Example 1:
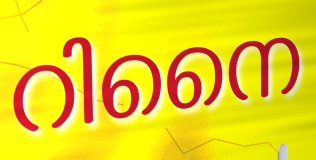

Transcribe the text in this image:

റിനൈ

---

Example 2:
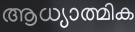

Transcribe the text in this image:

ആധ്യാത്മിക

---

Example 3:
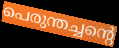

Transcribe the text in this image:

പെരുന്തച്ചന്റെ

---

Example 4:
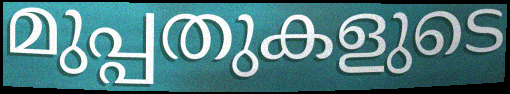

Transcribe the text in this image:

മുപ്പതുകളുടെ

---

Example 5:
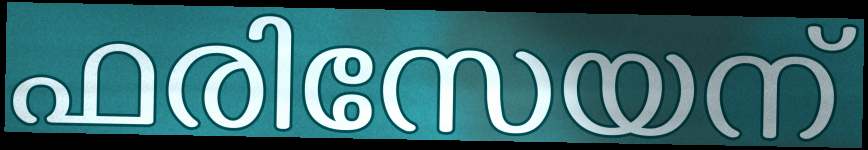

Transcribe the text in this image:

ഫരിസേയന്